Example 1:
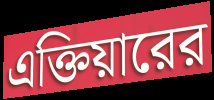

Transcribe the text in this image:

এক্তিয়ারের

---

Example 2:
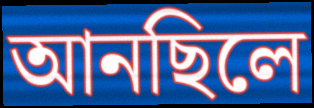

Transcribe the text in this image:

আনছিলে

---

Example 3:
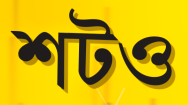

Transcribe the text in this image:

শটও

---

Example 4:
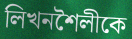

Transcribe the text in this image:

লিখনশৈলীকে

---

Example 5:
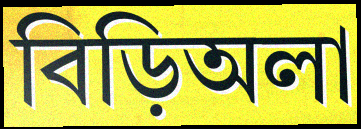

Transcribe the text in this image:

বিড়িঅলা